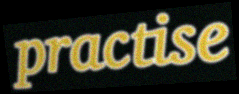
practise